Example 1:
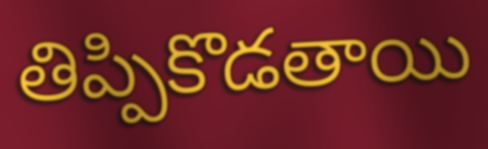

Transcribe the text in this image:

తిప్పికొడతాయి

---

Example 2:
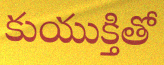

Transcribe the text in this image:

కుయుక్తితో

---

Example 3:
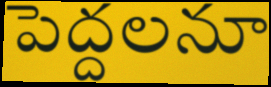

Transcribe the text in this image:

పెద్దలనూ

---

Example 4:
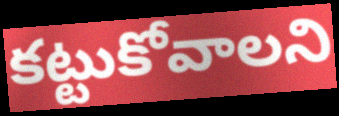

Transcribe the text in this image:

కట్టుకోవాలని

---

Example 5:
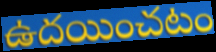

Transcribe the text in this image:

ఉదయించటం